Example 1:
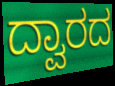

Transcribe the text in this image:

ದ್ವಾರದ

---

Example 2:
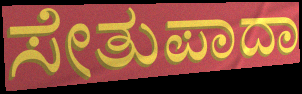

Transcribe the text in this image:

ಸೇತುಪಾದಾ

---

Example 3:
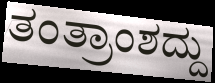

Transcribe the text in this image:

ತಂತ್ರಾಂಶದ್ದು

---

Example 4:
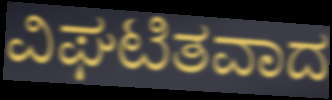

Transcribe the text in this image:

ವಿಘಟಿತವಾದ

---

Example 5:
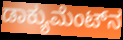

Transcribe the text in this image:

ಡಾಕ್ಯುಮೆಂಟ್‌ನ